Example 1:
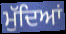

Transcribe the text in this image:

ਮੁੱਦਿਆਂ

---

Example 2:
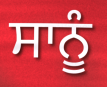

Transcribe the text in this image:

ਸਾਨੂੰ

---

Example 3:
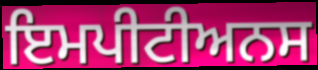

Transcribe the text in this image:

ਇਮਪੀਟੀਅਨਸ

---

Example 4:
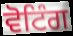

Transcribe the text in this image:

ਵੋਟਿੰਗ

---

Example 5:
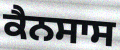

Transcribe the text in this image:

ਕੈਨਸਾਸ